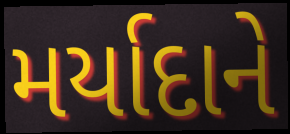
મર્યાદાને